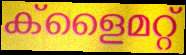
ക്ളൈമറ്റ്